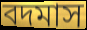
বদমাস